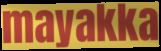
mayakka